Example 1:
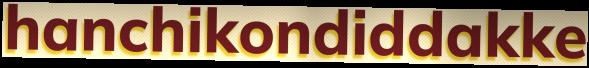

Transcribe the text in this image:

hanchikondiddakke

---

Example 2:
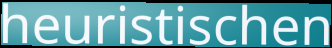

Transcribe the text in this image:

heuristischen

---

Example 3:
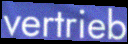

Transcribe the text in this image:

vertrieb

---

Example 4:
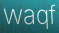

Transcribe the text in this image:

waqf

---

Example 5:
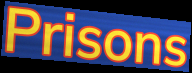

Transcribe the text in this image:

Prisons